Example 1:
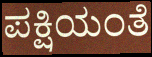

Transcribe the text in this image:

ಪಕ್ಷಿಯಂತೆ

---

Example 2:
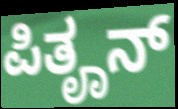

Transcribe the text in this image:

ಪಿತೄನ್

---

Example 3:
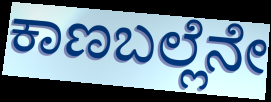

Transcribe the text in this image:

ಕಾಣಬಲ್ಲೆನೇ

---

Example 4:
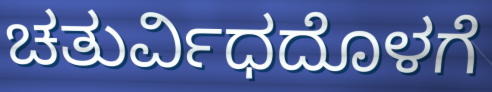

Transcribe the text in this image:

ಚತುರ್ವಿಧದೊಳಗೆ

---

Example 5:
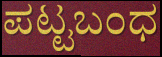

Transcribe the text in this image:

ಪಟ್ಟಬಂಧ